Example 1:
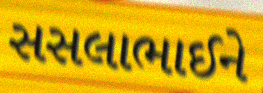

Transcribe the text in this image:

સસલાભાઈને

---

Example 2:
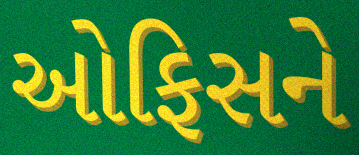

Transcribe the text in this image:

ઓફિસને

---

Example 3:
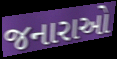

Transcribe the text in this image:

જનારાઓ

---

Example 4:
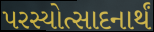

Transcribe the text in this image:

પરસ્યોત્સાદનાર્થં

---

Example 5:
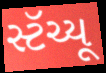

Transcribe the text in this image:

સ્ટૅચ્યૂ